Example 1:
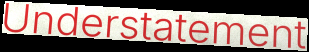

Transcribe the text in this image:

Understatement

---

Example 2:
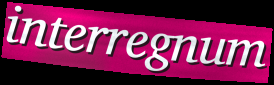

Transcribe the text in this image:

interregnum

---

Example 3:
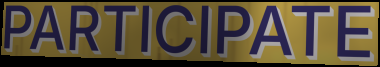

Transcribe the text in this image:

PARTICIPATE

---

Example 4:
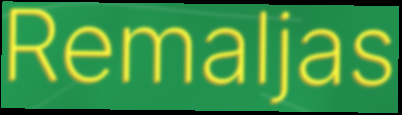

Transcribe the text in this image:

Remaljas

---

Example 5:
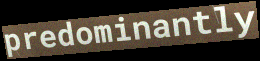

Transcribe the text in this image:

predominantly